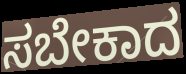
ಸಬೇಕಾದ